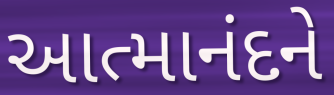
આત્માનંદને